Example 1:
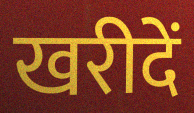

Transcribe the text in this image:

खरीदें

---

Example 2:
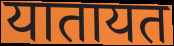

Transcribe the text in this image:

यातायत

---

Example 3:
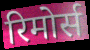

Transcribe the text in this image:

रिमोर्स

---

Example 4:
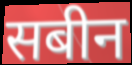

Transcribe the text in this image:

सबीन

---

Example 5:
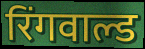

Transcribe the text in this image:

रिंगवाल्ड